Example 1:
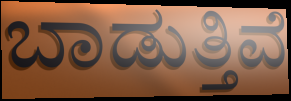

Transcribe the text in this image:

ಬಾಡುತ್ತಿವೆ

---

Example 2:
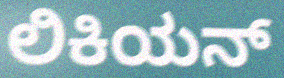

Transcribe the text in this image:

ಲಿಕಿಯನ್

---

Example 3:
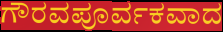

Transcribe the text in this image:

ಗೌರವಪೂರ್ವಕವಾದ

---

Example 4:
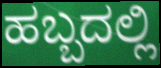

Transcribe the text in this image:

ಹಬ್ಬದಲ್ಲಿ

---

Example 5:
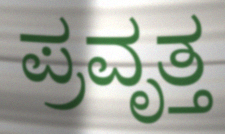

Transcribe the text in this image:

ಪ್ರವೃತ್ತ